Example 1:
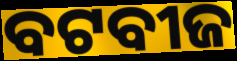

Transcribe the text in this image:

ବଟବୀଜ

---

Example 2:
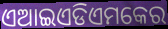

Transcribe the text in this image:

ଏଆଇଏଡିଏମକେର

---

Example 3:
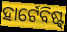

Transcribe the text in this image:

ହାର୍ଟେବିଷ୍ଟ୍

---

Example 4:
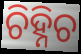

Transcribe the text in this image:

ଚିହ୍ନିଚ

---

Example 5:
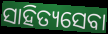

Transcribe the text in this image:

ସାହିତ୍ୟସେବା